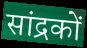
सांद्रकों